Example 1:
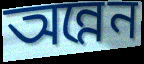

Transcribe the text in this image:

অন্নেন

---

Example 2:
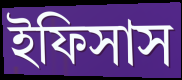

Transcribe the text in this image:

ইফিসাস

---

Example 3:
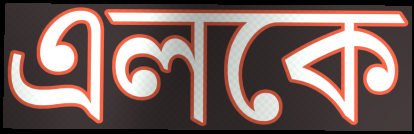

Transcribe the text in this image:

এলকে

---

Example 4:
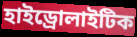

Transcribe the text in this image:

হাইড্রোলাইটিক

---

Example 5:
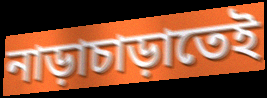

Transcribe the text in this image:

নাড়াচাড়াতেই